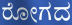
ರೋಗದ